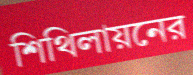
শিথিলায়নের